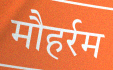
मौहर्रम